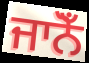
ਜਾਨੋਁ